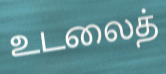
உடலைத்